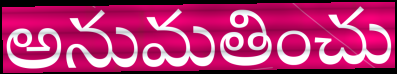
అనుమతించు